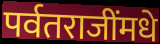
पर्वतराजींमधे